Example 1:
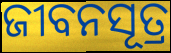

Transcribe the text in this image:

ଜୀବନସୂତ୍ର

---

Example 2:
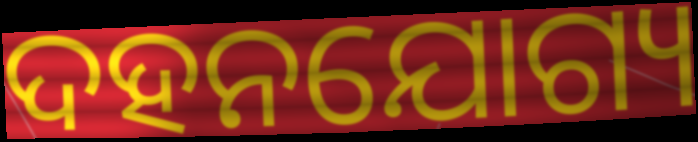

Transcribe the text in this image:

ଦହନଯୋଗ୍ୟ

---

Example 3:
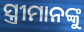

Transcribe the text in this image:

ସ୍ତ୍ରୀମାନଙ୍କୁ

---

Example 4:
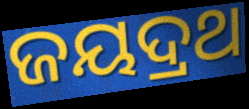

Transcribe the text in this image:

ଜୟଦ୍ରଥ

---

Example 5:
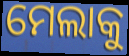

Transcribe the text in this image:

ମେଲାକୁ